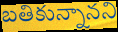
బతికున్నానని